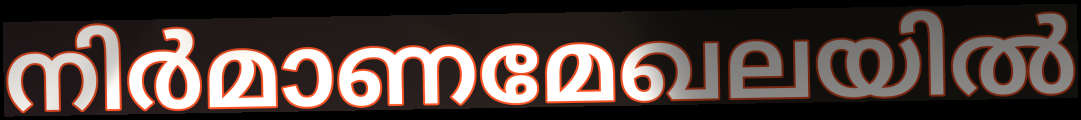
നിർമാണമേഖലയിൽ